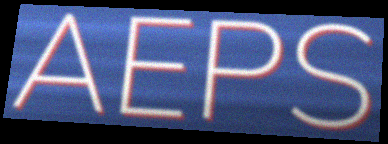
AEPS